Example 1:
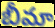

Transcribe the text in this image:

బీమా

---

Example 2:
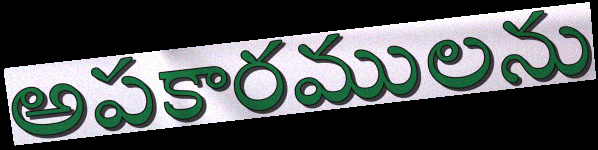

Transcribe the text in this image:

అపకారములను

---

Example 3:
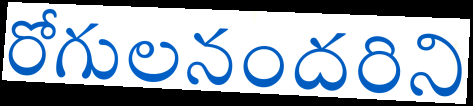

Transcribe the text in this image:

రోగులనందరిని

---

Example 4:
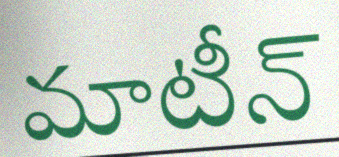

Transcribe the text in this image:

మాటీన్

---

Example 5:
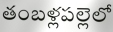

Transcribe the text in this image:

తంబళ్లపల్లెలో